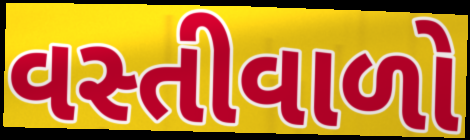
વસ્તીવાળો